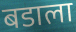
बडाला